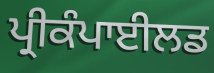
ਪ੍ਰੀਕੰਪਾਈਲਡ